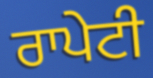
ਰਾਪੇਟੀ